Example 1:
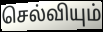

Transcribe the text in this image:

செல்வியும்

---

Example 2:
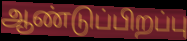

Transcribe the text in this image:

ஆண்டுப்பிறப்பு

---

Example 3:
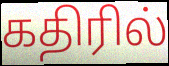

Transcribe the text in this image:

கதிரில்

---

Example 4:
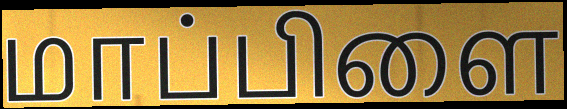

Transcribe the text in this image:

மாப்பிளை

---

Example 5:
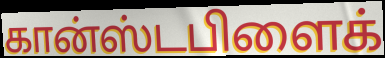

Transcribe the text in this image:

கான்ஸ்டபிளைக்